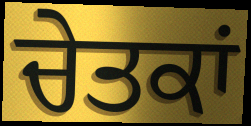
ਚੇਤਕਾਂ